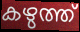
കഴുത്ത്